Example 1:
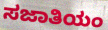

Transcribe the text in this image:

ಸಜಾತಿಯಂ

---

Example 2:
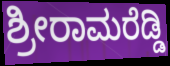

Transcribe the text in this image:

ಶ್ರೀರಾಮರೆಡ್ಡಿ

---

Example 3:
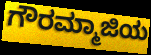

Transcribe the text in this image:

ಗೌರಮ್ಮಾಜಿಯ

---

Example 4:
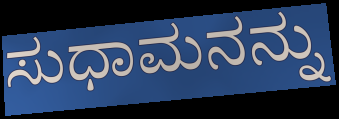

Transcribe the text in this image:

ಸುಧಾಮನನ್ನು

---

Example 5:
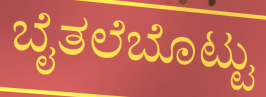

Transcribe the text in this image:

ಬೈತಲೆಬೊಟ್ಟು